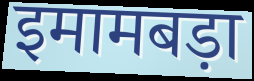
इमामबड़ा